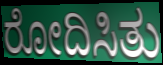
ರೋದಿಸಿತು